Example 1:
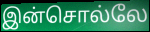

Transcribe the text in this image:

இன்சொல்லே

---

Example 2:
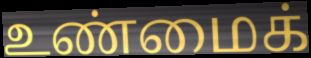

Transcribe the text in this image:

உண்மைக்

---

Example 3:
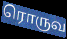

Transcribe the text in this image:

ரொருவ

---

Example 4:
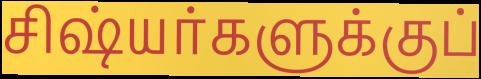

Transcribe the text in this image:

சிஷ்யர்களுக்குப்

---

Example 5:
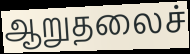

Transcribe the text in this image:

ஆறுதலைச்